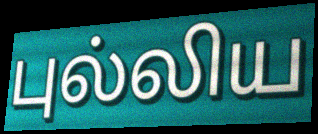
புல்லிய